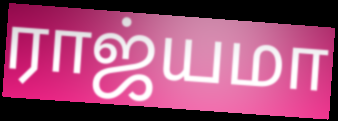
ராஜ்யமா